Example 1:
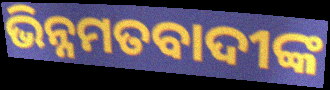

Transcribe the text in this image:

ଭିନ୍ନମତବାଦୀଙ୍କ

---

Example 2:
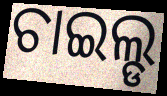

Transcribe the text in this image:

ଚାଇଲ୍ଡ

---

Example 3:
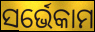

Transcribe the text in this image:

ସର୍ଭେକାମ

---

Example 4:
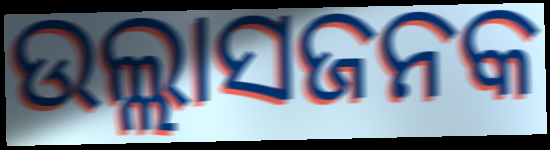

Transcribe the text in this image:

ଉଲ୍ଲାସଜନକ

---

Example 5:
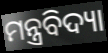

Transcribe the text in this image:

ମନ୍ତ୍ରବିଦ୍ୟା